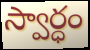
స్వార్ధం